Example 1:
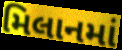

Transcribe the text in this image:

મિલાનમાં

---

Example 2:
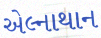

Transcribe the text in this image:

એલ્નાથાન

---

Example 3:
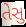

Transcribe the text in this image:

તેસુ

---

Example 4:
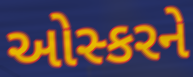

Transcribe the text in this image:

ઓસ્કરને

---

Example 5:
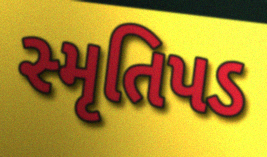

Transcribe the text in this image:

સ્મૃતિપડ